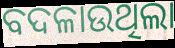
ବଦଳାଉଥିଲା